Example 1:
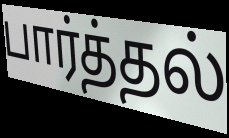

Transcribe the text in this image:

பார்த்தல்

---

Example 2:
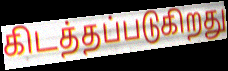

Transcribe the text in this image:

கிடத்தப்படுகிறது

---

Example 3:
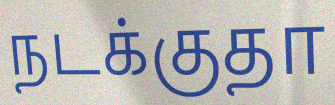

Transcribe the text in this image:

நடக்குதா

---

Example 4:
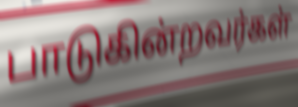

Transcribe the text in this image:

பாடுகின்றவர்கள்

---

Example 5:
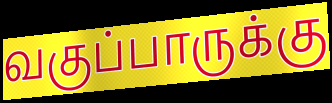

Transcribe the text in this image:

வகுப்பாருக்கு